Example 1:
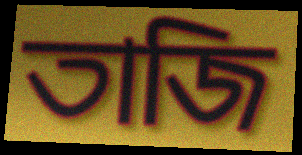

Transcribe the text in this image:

তাজি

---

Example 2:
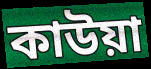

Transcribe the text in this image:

কাউয়া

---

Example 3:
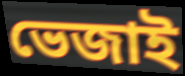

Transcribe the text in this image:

ভেজাই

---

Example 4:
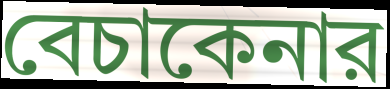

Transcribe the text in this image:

বেচাকেনার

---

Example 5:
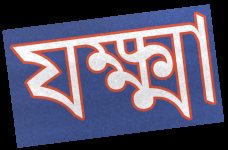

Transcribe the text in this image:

যক্ষ্মা